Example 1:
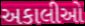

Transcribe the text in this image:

અકાલીઓ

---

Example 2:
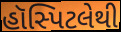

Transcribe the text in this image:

હૉસ્પિટલેથી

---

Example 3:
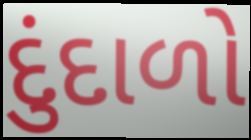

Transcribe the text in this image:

દુંદાળો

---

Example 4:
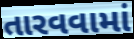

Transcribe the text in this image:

તારવવામાં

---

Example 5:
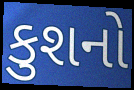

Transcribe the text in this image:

કુશનો